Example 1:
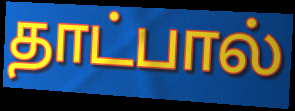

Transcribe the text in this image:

தாட்பால்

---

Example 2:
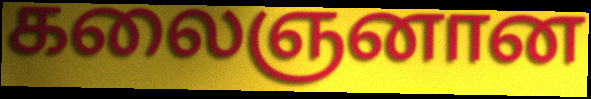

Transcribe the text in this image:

கலைஞனான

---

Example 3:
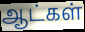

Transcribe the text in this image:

ஆட்கள்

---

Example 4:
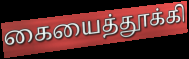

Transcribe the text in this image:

கையைத்தூக்கி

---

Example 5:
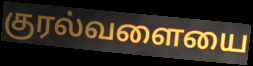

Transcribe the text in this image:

குரல்வளையை